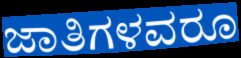
ಜಾತಿಗಳವರೂ